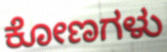
ಕೋಣಗಳು